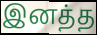
இனத்த